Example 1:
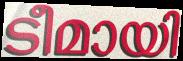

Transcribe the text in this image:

ടീമായി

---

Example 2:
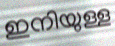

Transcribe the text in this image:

ഇനിയുള്ള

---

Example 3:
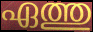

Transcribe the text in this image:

ഏത്തു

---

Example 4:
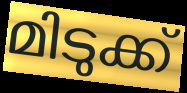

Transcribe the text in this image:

മിടുക്ക്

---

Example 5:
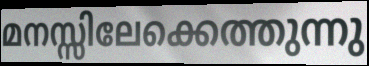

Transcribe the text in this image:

മനസ്സിലേക്കെത്തുന്നു